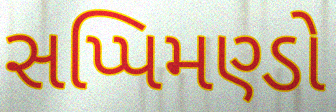
સપ્પિમણ્ડો